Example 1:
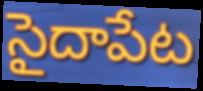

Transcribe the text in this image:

సైదాపేట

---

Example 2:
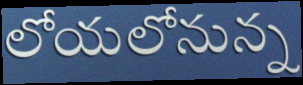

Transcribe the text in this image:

లోయలోనున్న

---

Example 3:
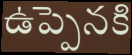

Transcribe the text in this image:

ఉప్పెనకి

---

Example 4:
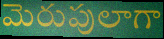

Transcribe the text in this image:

మెరుపులాగా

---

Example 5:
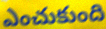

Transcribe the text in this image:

ఎంచుకుంది